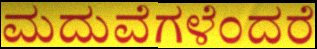
ಮದುವೆಗಳೆಂದರೆ